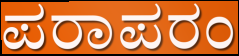
ಪರಾಪರಂ